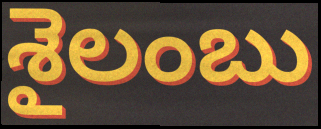
శైలంబు